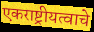
एकराष्ट्रीयत्वाचे